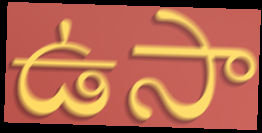
ఉసా